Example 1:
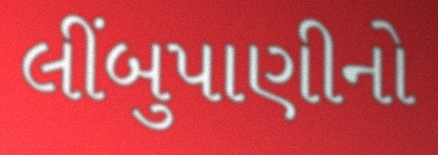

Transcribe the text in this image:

લીંબુપાણીનો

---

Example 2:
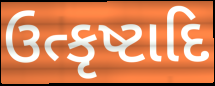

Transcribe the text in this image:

ઉત્કૃષ્ટાદિ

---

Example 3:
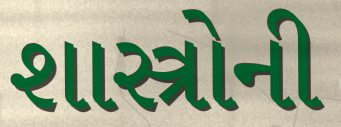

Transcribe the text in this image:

શાસ્ત્રોની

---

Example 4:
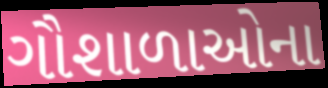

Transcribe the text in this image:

ગૌશાળાઓના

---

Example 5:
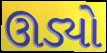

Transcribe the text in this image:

ઊડ્યો